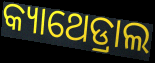
କ୍ୟାଥେଡ୍ରାଲ